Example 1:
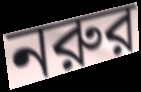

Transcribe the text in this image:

নরুর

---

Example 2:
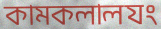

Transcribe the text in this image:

কামকলালযং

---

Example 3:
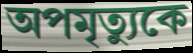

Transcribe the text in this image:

অপমৃত্যুকে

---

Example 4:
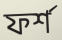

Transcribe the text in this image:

ফর্শ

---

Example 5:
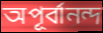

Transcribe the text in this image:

অপূর্বানন্দ